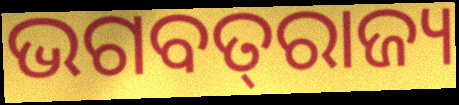
ଭଗବତ୍‌ରାଜ୍ୟ